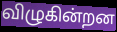
விழுகின்றன